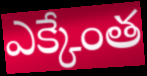
ఎక్కేంత